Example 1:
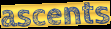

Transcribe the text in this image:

ascents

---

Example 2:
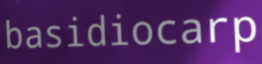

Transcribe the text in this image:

basidiocarp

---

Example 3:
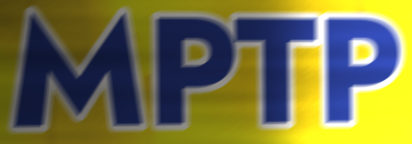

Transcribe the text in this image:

MPTP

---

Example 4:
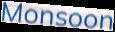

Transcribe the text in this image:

Monsoon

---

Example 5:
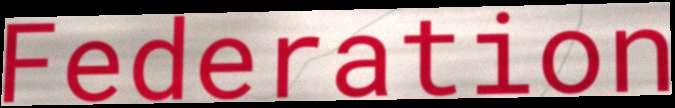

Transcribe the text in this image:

Federation